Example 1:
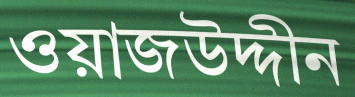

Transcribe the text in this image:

ওয়াজউদ্দীন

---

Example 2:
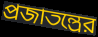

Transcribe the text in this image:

প্রজাতন্ত্রের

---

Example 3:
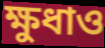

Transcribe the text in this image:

ক্ষুধাও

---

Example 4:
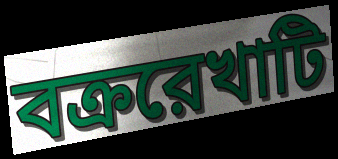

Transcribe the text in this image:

বক্ররেখাটি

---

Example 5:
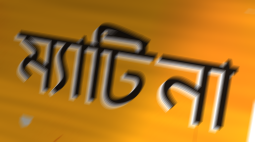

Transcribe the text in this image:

ম্যাটিনা